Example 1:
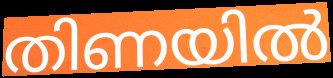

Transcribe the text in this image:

തിണയിൽ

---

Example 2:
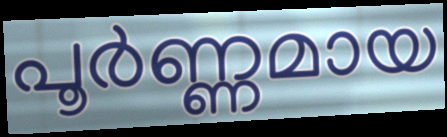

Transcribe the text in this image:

പൂർണ്ണമായ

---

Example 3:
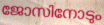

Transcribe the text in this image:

ജോസിനോടും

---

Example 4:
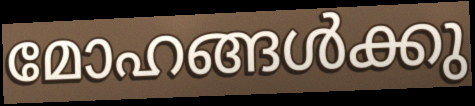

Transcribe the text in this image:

മോഹങ്ങൾക്കു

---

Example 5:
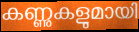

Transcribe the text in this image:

കണ്ണുകളുമായി